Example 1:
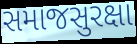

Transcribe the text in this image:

સમાજસુરક્ષા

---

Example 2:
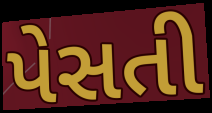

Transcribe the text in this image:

પેસતી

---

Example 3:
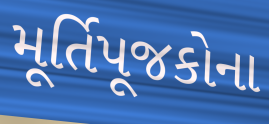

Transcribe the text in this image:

મૂર્તિપૂજકોના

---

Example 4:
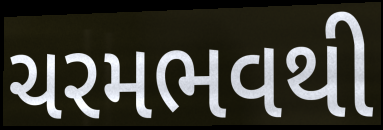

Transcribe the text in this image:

ચરમભવથી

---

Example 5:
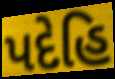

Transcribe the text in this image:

પદેહિ